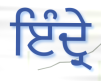
ਇੰਦ੍ਰੇ